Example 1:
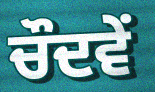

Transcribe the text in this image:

ਚੌਦਵੇਂ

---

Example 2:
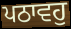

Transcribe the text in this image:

ਪਠਾਵਹੁ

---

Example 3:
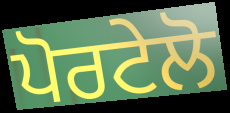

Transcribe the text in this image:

ਪੋਰਟੇਲੋ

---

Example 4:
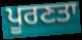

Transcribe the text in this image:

ਪੂਰਣਤਾ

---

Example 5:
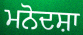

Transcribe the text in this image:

ਮਨੋਦਸ਼ਾ